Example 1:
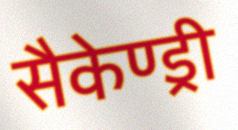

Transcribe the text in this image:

सैकेण्ड्री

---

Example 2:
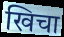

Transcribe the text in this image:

खिचा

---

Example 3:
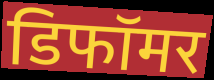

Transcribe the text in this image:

डिफॉमर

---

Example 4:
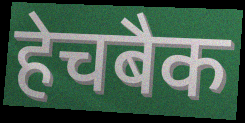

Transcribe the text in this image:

हेचबैक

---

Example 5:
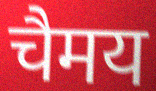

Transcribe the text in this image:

चैमय